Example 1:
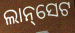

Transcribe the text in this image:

ଲାନ୍‌ସେଟ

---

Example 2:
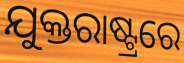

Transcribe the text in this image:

ଯୁକ୍ତରାଷ୍ଟ୍ରରେ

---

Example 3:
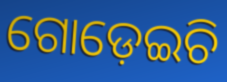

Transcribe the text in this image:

ଗୋଡ଼େଇଚି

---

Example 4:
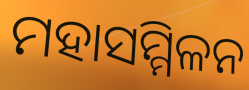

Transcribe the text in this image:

ମହାସମ୍ମିଳନ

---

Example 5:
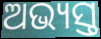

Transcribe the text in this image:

ଅଭ୍ୟସ୍ତ